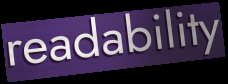
readability